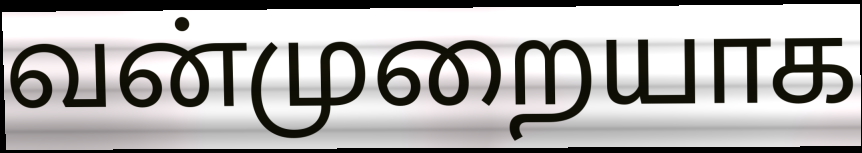
வன்முறையாக